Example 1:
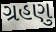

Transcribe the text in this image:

ગ્રહણુ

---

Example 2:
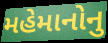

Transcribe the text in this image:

મહેમાનોનુ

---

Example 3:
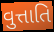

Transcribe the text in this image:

વુત્તાતિ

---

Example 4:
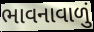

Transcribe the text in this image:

ભાવનાવાળું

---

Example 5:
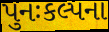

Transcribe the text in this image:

પુનઃકલ્પના